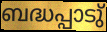
ബദ്ധപ്പാടു്